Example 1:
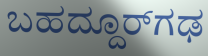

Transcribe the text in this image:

ಬಹದ್ದೂರ್‌ಗಢ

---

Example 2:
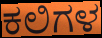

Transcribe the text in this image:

ಕಲಿಗಳ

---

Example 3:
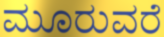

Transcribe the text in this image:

ಮೂರುವರೆ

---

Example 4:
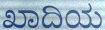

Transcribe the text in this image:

ಖಾದಿಯ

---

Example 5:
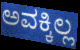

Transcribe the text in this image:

ಅವಕ್ಕಿಲ್ಲ